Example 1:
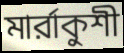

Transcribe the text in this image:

মার্রাকুশী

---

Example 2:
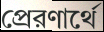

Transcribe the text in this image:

প্রেরণার্থে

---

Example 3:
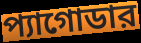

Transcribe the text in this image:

প্যাগোডার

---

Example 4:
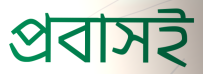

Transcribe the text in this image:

প্রবাসই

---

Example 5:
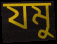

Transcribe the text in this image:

যমু